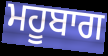
ਮਹੂਬਾਗ